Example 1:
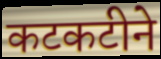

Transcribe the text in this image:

कटकटीने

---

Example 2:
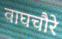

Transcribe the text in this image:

वाघचौरे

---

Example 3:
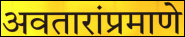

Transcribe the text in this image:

अवतारांप्रमाणे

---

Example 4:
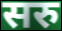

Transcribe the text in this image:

सरु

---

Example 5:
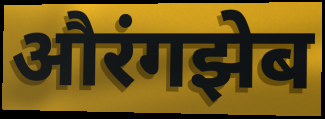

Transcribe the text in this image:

औरंगझेब